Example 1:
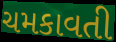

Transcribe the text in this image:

ચમકાવતી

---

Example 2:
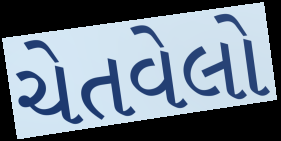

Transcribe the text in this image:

ચેતવેલો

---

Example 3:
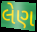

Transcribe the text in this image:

લેણ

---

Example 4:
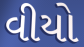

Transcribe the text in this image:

વીયો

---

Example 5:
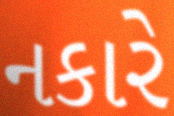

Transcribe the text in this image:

નકારે